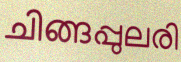
ചിങ്ങപ്പുലരി